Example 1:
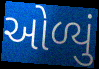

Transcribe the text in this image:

ઓળ્યું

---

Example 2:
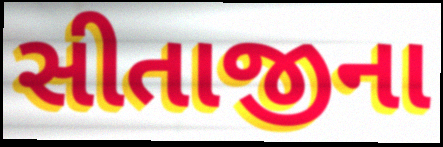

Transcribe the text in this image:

સીતાજીના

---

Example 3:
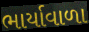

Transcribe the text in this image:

ભાર્યાવાળા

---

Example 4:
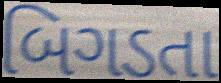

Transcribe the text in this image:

બિગડતા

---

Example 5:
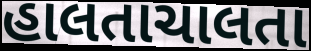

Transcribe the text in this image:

હાલતાચાલતા